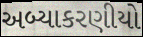
અબ્યાકરણીયો